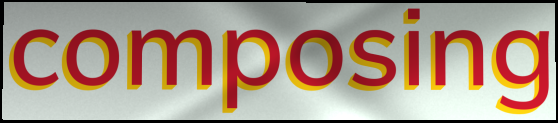
composing